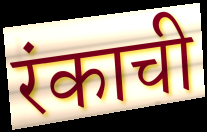
रंकाची